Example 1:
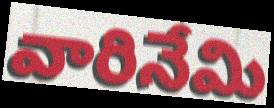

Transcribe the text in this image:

వారినేమి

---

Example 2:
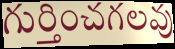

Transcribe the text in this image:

గుర్తించగలవు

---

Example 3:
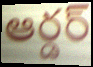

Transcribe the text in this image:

ఆర్డర్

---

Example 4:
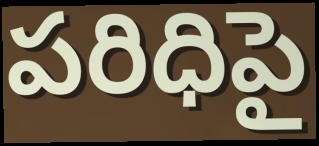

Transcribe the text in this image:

పరిధిపై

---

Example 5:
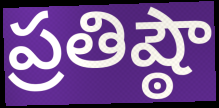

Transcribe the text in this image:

ప్రతిష్ఠౌ